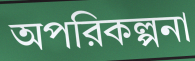
অপরিকল্পনা